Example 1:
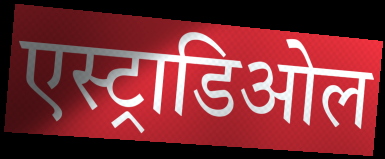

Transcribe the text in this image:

एस्ट्राडिओल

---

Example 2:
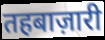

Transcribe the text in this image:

तहबाज़ारी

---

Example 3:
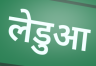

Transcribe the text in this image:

लेडुआ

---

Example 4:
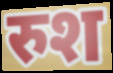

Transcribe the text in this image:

रुश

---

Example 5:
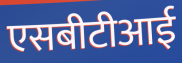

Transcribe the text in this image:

एसबीटीआई